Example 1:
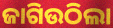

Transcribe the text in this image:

ଜାଗିଉଠିଲା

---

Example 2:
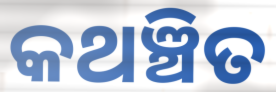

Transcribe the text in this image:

କଥଞ୍ଚିତ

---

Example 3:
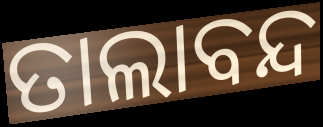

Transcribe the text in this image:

ତାଲାବନ୍ଦ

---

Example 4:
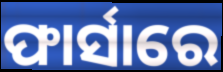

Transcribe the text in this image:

ଫାର୍ସାରେ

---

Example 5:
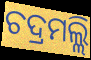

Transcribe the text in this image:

ଚଦ୍ରମଲ୍ଲି